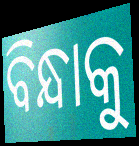
ବିନ୍ଧାକୁ